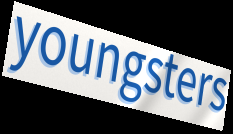
youngsters